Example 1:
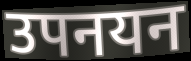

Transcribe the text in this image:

उपनयन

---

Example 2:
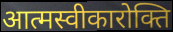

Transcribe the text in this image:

आत्मस्वीकारोक्ति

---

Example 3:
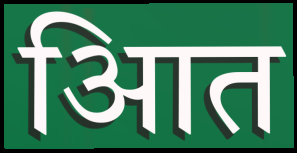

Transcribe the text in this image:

आित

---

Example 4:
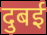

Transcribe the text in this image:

दुबई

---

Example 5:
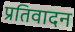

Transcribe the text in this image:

प्रतिवादन